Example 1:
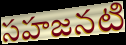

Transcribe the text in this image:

సహజనటి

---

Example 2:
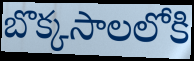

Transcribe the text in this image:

బొక్కసాలలోకి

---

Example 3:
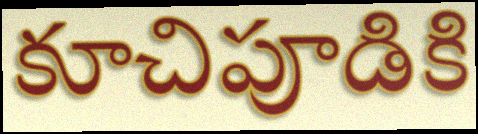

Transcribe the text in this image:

కూచిపూడికి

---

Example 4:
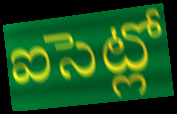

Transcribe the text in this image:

ఐసెట్లో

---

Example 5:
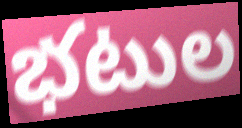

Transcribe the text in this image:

భటుల